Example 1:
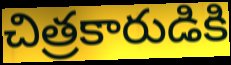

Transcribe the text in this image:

చిత్రకారుడికి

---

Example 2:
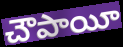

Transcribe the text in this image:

చౌపాయీ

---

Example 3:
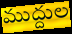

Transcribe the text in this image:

ముద్దుల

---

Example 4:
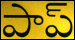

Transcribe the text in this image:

పాప్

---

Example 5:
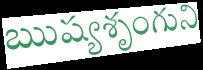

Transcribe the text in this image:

ఋష్యశృంగుని